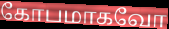
கோபமாகவோ